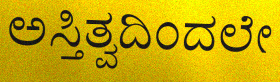
ಅಸ್ತಿತ್ವದಿಂದಲೇ